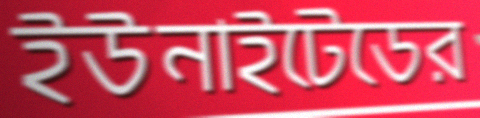
ইউনাইটেডের